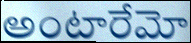
అంటారేమో